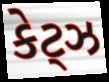
કેટ્ઝ